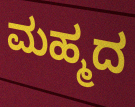
ಮಹ್ಮದ